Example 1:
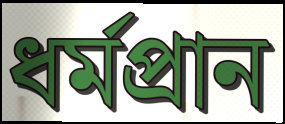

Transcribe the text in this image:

ধর্মপ্রান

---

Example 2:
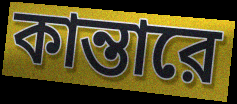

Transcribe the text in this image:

কান্তারে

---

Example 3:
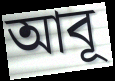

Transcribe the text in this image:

আবূ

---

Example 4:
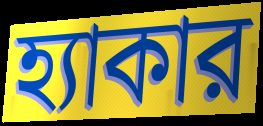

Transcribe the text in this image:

হ্যাকার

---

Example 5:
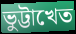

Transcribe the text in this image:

ভুট্টাখেত